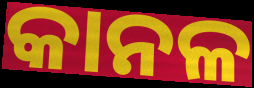
କାନଳ